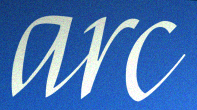
arc